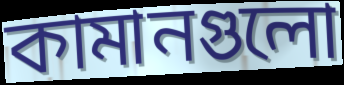
কামানগুলো